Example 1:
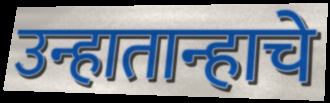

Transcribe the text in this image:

उन्हातान्हाचे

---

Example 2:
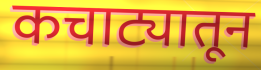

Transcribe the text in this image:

कचाट्यातून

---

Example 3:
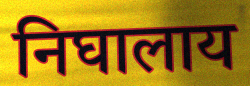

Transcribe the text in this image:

निघालाय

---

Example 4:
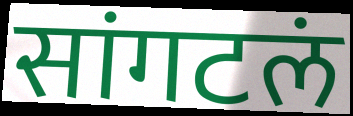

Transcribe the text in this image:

सांगटलं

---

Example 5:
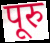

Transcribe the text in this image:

पूरु